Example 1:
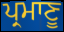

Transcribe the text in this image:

ਪ੍ਰਮਾਣੂ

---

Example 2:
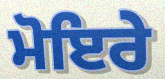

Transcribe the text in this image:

ਮੋਇਰੇ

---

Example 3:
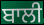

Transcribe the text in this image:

ਬਾਲੀ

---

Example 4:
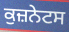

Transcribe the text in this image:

ਕੁਜ਼ਨੇਟਸ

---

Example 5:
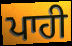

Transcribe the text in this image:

ਪਾਹੀ